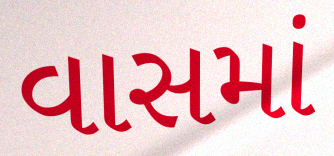
વાસમાં